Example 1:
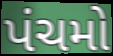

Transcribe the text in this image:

પંચમો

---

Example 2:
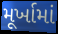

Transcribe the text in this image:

મૂર્ખામાં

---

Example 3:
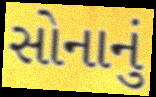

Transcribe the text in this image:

સોનાનું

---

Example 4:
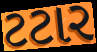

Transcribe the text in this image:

ટટાર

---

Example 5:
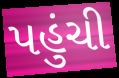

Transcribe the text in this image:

પહુંચી